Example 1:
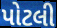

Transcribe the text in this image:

પોટલી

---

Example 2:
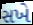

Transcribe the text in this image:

સખે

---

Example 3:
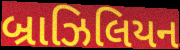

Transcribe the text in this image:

બ્રાઝિલિયન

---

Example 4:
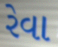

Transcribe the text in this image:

રેવા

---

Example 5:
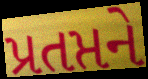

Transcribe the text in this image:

પ્રતપ્તને